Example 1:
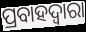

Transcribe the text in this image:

ପ୍ରବାହଦ୍ୱାରା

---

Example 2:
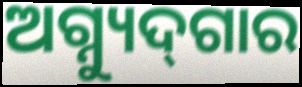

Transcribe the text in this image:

ଅଗ୍ନ୍ୟୁଦ୍‌ଗାର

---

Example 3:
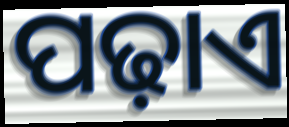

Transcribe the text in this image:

ପଢ଼ାଏ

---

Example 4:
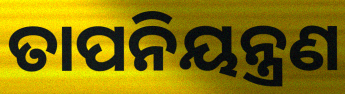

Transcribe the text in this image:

ତାପନିୟନ୍ତ୍ରଣ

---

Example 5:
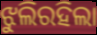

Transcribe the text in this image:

ଝୁଲିରହିଲା